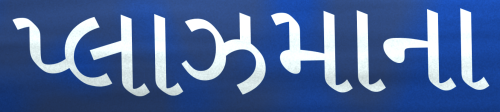
પ્લાઝમાના